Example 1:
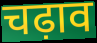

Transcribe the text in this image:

चढ़ाव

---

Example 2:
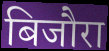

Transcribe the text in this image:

बिजौरा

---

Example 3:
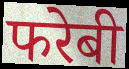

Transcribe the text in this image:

फरेबी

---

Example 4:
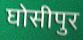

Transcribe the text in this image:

घोसीपुर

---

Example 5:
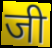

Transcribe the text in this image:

जी